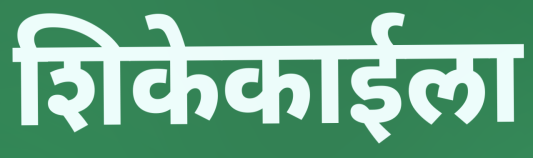
शिकेकाईला